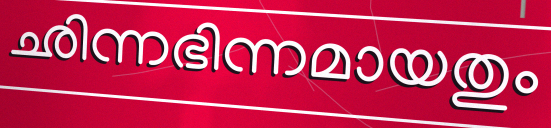
ഛിന്നഭിന്നമായതും